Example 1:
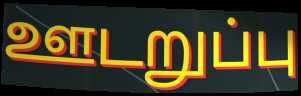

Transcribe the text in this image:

ஊடறுப்பு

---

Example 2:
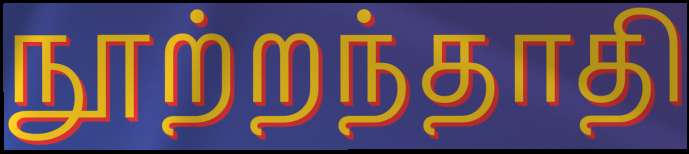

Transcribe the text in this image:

நூற்றந்தாதி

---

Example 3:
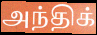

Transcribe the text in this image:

அந்திக்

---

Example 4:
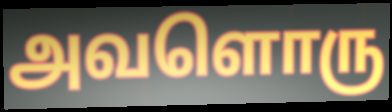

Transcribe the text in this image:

அவளொரு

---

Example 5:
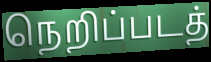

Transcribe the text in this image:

நெறிப்படத்